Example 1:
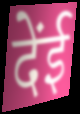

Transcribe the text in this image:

देंई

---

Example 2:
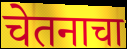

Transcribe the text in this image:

चेतनाचा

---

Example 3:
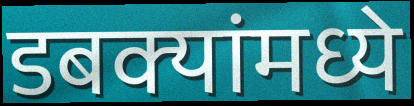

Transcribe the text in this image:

डबक्यांमध्ये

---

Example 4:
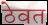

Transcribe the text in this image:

ठेवत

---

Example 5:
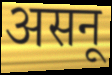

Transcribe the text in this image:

असनू